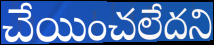
చేయించలేదని